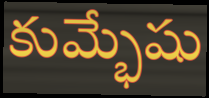
కుమ్భేషు